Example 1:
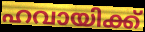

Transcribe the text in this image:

ഹവായിക്ക്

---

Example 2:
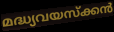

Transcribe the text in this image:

മദ്ധ്യവയസ്ക്കൻ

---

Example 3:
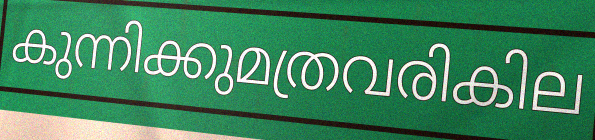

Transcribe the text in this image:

കുന്നിക്കുമത്രവരികില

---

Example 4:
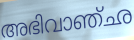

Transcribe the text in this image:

അഭിവാഞ്ഛ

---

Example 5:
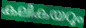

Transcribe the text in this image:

കലികയറും